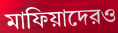
মাফিয়াদেরও